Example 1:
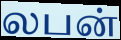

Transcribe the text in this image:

லபன்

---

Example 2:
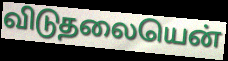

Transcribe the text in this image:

விடுதலையென்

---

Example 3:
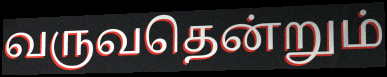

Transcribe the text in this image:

வருவதென்றும்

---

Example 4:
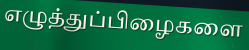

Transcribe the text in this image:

எழுத்துப்பிழைகளை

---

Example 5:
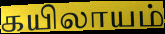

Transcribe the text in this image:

கயிலாயம்